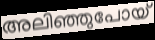
അലിഞ്ഞുപോയ്